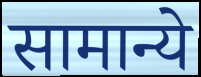
सामान्ये